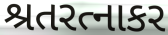
શ્રતરત્નાકર